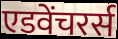
एडवेंचरर्स